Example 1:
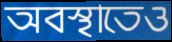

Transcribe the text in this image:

অবস্থাতেও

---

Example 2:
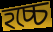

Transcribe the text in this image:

হচ্চে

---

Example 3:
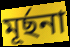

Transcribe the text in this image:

মূর্ছনা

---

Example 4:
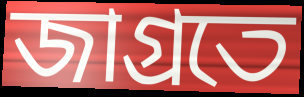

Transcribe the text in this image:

জাগ্রতে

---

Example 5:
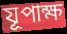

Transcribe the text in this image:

যূপাক্ষ